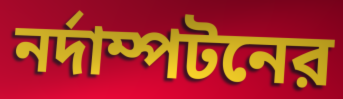
নর্দাম্পটনের